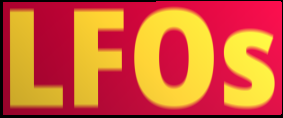
LFOs